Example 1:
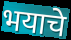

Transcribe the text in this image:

भयाचे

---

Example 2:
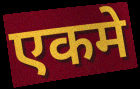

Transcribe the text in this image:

एकमे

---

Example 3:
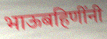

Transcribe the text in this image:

भाऊबहिणींनी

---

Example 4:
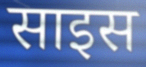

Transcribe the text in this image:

साइस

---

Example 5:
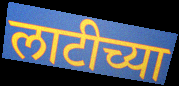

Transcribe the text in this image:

लाटीच्या